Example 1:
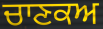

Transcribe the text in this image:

ਚਾਣਕਅ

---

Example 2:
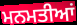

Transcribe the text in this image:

ਮਨਮਤੀਆਂ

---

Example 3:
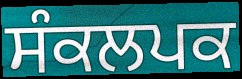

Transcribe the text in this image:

ਸੰਕਲਪਕ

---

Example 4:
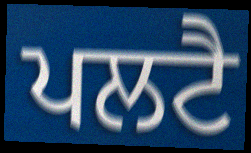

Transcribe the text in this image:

ਪਲਟੈ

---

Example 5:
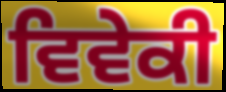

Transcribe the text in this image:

ਵਿਵੇਕੀ